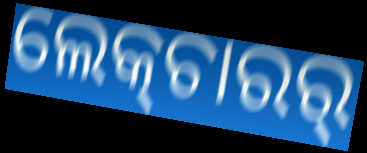
ଲେକ୍‍ଚାରର୍